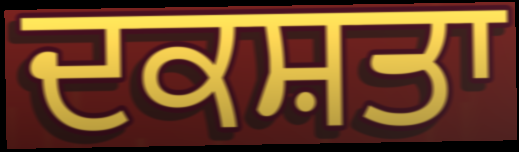
ਦਕਸ਼ਤਾ